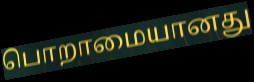
பொறாமையானது